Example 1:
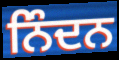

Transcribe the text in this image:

ਨਿੰਦਨ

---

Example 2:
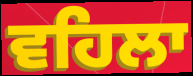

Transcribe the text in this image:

ਵਹਿਲਾ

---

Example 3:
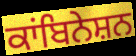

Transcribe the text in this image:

ਕਾਂਬਿਨੇਸ਼ਨ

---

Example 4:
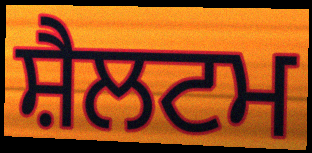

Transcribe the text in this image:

ਸ਼ੈਲਟਮ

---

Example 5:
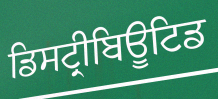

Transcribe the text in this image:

ਡਿਸਟ੍ਰੀਬਿਊਟਿਡ